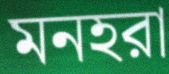
মনহরা